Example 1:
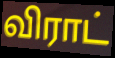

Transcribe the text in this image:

விராட்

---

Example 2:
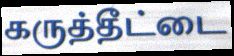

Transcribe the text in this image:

கருத்தீட்டை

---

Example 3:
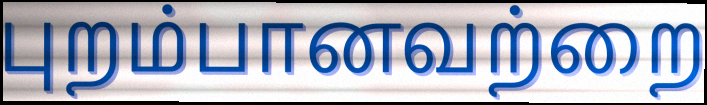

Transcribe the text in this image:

புறம்பானவற்றை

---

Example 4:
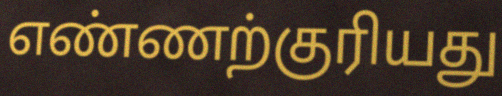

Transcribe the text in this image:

எண்ணற்குரியது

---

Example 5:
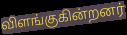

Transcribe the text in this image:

விளங்குகின்றனர்